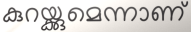
കുറയ്ക്കുമെന്നാണ്